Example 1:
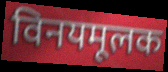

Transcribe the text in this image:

विनयमूलक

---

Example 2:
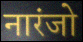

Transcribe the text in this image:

नारंजो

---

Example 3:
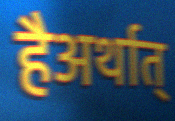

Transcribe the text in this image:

हैअर्थात्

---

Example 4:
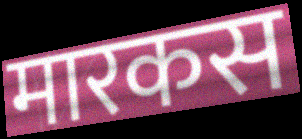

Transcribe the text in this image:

मारकस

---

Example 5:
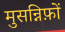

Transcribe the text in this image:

मुसन्निफ़ों